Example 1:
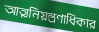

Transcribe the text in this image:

আত্মনিয়ন্ত্রণাধিকার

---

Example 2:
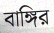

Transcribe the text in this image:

বাঙ্গির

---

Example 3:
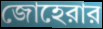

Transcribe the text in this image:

জোহেরার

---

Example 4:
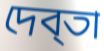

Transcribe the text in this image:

দেব্‌তা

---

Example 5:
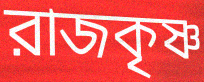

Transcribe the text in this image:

রাজকৃষ্ণ